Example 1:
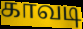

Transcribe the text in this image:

காவடி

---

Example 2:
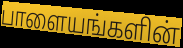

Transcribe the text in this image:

பாளையங்களின்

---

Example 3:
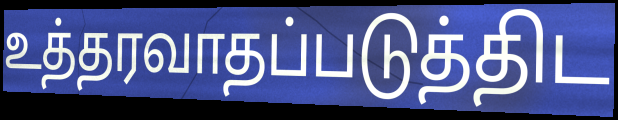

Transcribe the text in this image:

உத்தரவாதப்படுத்திட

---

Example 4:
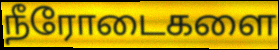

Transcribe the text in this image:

நீரோடைகளை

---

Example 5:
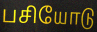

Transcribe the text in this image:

பசியோடு